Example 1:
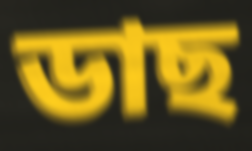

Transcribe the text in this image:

ডাছ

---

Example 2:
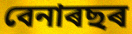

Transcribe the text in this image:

বেনাৰছৰ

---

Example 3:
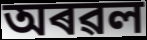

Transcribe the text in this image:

অৰৱল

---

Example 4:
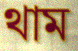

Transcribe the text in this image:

থাম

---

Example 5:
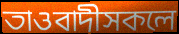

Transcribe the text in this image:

তাওবাদীসকলে